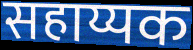
सहाय्यक